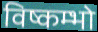
विष्कम्भो